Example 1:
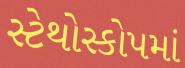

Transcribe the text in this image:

સ્ટેથોસ્કોપમાં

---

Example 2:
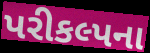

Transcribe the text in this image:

પરીકલ્પના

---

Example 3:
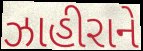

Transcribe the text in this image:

ઝાહીરાને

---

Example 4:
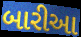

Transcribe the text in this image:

બારીઆ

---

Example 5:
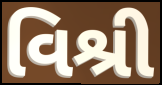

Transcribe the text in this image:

વિશ્રી